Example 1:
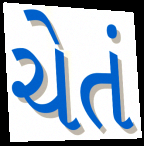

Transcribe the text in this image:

ચેતં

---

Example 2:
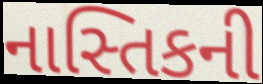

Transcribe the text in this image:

નાસ્તિકની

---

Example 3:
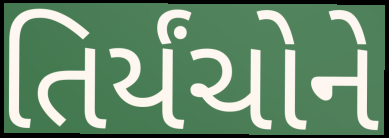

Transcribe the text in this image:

તિર્યંચોને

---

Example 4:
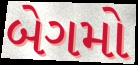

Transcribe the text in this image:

બેગમો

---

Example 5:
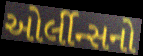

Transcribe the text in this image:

ઓર્લીન્સનો